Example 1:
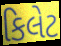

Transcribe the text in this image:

કિલેટ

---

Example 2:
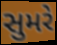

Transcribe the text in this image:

સુમરે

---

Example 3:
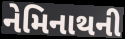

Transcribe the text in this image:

નેમિનાથની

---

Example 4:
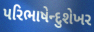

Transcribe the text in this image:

પરિભાષેન્દુશેખર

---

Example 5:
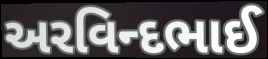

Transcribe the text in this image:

અરવિન્દભાઈ